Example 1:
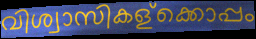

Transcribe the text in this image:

വിശ്വാസികള്ക്കൊപ്പം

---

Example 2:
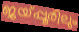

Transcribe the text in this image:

ജയ്പ്പൂരിലും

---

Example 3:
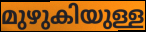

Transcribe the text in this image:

മുഴുകിയുള്ള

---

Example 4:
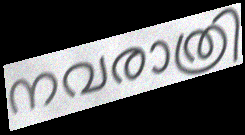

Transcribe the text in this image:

നവരാത്രി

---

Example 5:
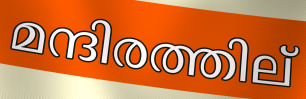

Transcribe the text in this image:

മന്ദിരത്തില്